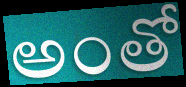
అంతో